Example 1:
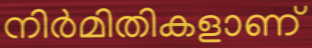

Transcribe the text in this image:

നിർമിതികളാണ്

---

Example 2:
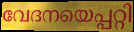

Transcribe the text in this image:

വേദനയെപ്പറ്റി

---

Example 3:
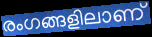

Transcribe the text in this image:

രംഗങ്ങളിലാണ്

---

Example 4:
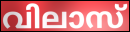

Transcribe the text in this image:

വിലാസ്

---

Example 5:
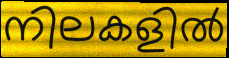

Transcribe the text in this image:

നിലകളിൽ